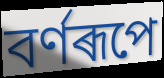
বৰ্ণৰূপে